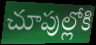
చూపుల్లోకి